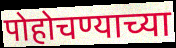
पोहोचण्याच्या